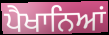
ਪੈਖਾਨਿਆਂ